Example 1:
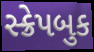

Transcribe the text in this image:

સ્ક્રેપબુક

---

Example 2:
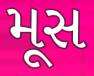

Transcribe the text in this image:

મૂસ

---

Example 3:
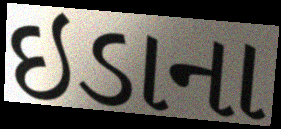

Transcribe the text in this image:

ઇડાના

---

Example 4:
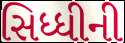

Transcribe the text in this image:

સિધ્ધીની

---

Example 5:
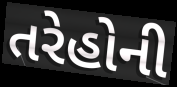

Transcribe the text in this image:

તરેહોની